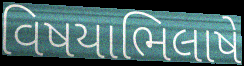
વિષયાભિલાષે